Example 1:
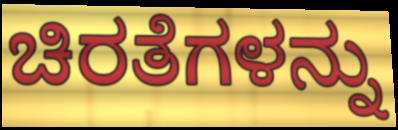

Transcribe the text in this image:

ಚಿರತೆಗಳನ್ನು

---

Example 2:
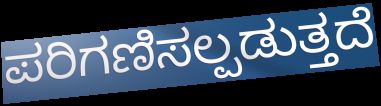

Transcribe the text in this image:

ಪರಿಗಣಿಸಲ್ಪಡುತ್ತದೆ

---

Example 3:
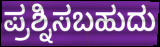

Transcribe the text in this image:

ಪ್ರಶ್ನಿಸಬಹುದು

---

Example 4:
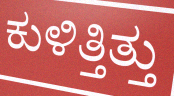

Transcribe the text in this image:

ಕುಳಿತ್ತಿತ್ತು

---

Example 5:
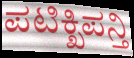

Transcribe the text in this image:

ಪಟಿಕ್ಖಿಪನ್ತಿ